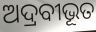
ଅଦ୍ରବୀଭୂତ